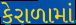
કેરાળામાં